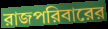
রাজপরিবারের